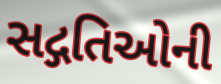
સદ્ગતિઓની